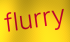
flurry